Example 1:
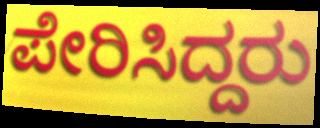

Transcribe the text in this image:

ಪೇರಿಸಿದ್ದರು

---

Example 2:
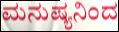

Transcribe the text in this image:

ಮನುಷ್ಯನಿಂದ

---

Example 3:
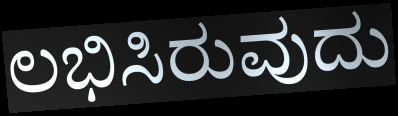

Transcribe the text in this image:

ಲಭಿಸಿರುವುದು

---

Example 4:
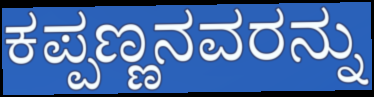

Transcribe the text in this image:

ಕಪ್ಪಣ್ಣನವರನ್ನು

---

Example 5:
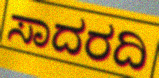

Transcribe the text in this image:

ಸಾದರದಿ